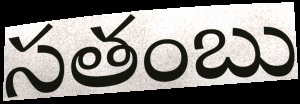
సతంబు